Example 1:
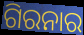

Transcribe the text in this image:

ଗିରନାର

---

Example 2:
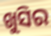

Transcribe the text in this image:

ଖୁସିର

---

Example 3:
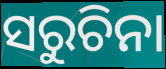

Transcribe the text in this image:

ସରୁଚିନା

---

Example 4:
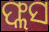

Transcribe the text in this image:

ଫ୍ଲସ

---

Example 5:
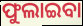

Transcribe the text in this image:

ଫୁଲାଇବା